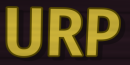
URP